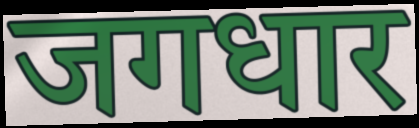
जगधार